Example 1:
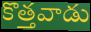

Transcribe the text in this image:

కొత్తవాడు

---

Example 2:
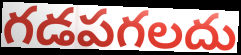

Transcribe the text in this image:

గడపగలదు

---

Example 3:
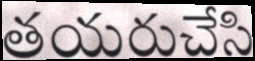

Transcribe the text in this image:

తయరుచేసి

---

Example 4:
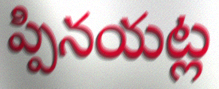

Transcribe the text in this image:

ప్పినయట్ల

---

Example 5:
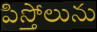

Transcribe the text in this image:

పిస్తోలును